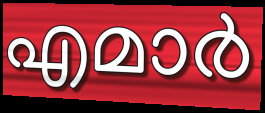
എമാർ